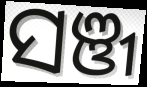
ସଞ୍ଜ